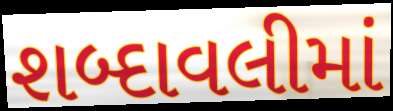
શબ્દાવલીમાં